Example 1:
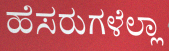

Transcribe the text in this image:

ಹೆಸರುಗಳೆಲ್ಲಾ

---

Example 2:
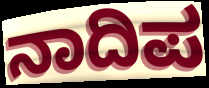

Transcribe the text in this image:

ನಾದಿಪ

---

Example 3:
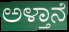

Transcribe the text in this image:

ಅಳ್ತಾನೆ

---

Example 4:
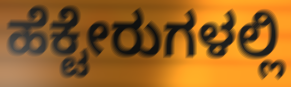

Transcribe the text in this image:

ಹೆಕ್ಟೇರುಗಳಲ್ಲಿ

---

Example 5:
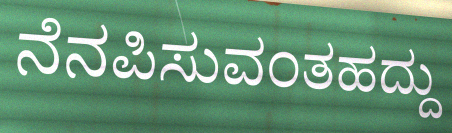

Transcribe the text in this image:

ನೆನಪಿಸುವಂತಹದ್ದು